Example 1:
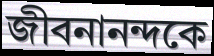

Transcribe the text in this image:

জীবনানন্দকে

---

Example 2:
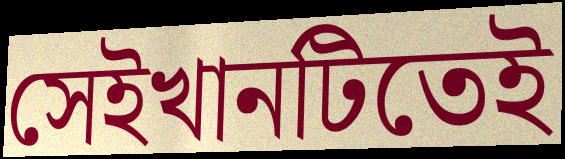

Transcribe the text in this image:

সেইখানটিতেই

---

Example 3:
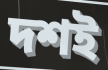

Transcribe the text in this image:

দশই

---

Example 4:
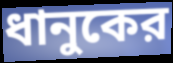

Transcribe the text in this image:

ধানুকের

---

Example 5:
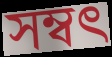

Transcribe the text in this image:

সম্বৎ